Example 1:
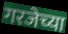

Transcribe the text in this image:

गरजेच्या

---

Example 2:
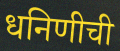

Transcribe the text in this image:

धनिणीची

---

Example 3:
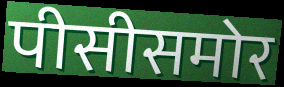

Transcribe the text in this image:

पीसीसमोर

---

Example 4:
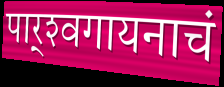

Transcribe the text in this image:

पार्श्वगायनाचं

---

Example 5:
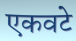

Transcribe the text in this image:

एकवटे